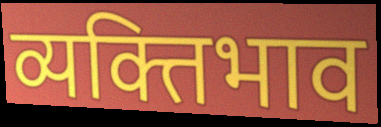
व्यक्तिभाव